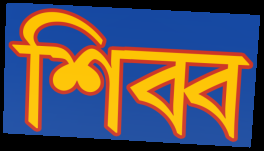
শিব্ব